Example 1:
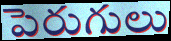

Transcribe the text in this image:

పెరుగులు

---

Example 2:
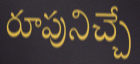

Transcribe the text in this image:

రూపునిచ్చే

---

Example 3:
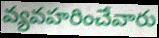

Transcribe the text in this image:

వ్యవహరించేవారు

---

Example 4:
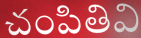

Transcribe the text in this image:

చంపితివి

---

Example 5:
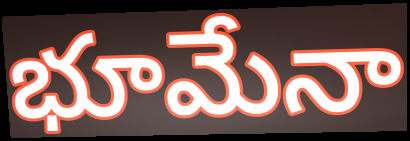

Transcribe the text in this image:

భూమేనా